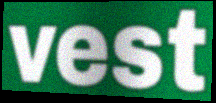
vest